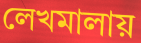
লেখমালায়